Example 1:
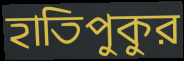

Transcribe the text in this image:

হাতিপুকুর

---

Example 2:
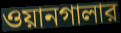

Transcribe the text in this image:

ওয়ানগালার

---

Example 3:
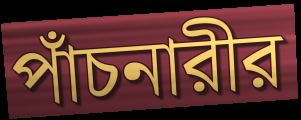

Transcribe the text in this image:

পাঁচনারীর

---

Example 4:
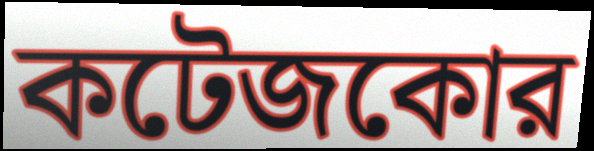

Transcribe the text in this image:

কটেজকোর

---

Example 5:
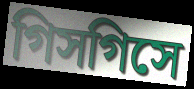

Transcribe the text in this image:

গিসগিসে